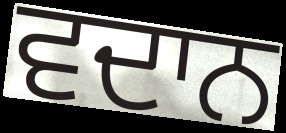
ਵਦਾਨ